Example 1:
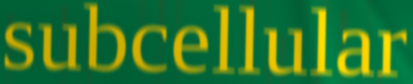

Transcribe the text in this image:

subcellular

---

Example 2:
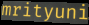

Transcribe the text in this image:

mrityuni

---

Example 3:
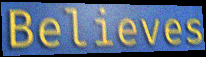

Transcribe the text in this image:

Believes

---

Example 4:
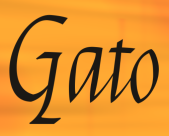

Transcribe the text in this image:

Gato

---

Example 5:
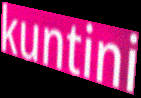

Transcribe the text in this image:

kuntini